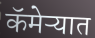
कॅमेऱ्यात